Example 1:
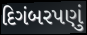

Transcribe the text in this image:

દિગંબરપણું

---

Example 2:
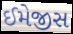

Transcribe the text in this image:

ઈમેજીસ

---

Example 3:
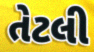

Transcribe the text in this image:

તેટલી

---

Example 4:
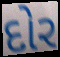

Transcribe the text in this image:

દોર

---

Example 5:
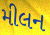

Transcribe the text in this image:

મીલન